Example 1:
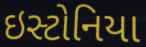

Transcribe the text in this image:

ઇસ્ટોનિયા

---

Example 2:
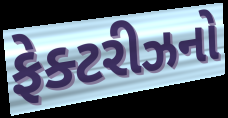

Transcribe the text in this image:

ફેક્ટરીઝનો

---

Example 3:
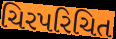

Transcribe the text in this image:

ચિરપરિચિત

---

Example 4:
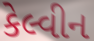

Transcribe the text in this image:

કેલ્વીન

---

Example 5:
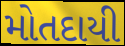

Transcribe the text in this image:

મોતદાયી